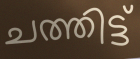
ചത്തിട്ട്